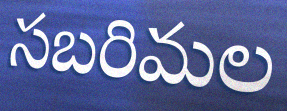
సబరిమల